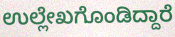
ಉಲ್ಲೇಖಗೊಂಡಿದ್ದಾರೆ